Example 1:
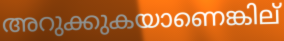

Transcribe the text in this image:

അറുക്കുകയാണെങ്കില്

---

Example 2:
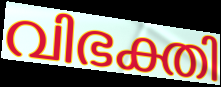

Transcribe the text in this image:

വിഭക്തി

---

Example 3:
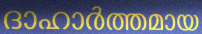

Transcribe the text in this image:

ദാഹാർത്തമായ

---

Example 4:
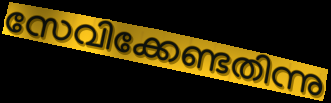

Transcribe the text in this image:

സേവിക്കേണ്ടതിന്നു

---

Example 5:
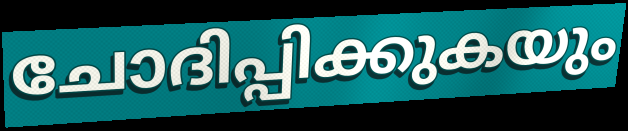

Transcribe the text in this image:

ചോദിപ്പിക്കുകയും